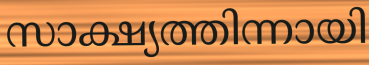
സാക്ഷ്യത്തിന്നായി